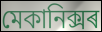
মেকানিক্সৰ